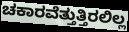
ಚಕಾರವೆತ್ತುತ್ತಿರಲಿಲ್ಲ